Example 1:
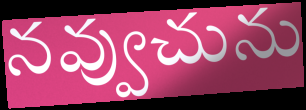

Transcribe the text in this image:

నవ్వుచును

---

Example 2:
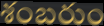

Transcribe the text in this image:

శంబరుం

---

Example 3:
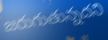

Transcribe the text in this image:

జరుగుతున్నదని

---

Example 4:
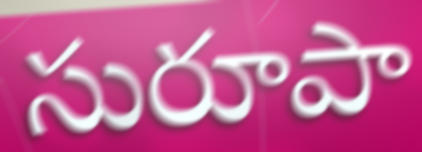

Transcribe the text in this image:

సురూపా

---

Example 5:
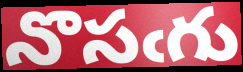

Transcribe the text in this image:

నొసఁగు